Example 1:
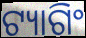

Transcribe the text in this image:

ଟ୍ୟାଗିଂ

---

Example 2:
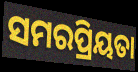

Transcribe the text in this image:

ସମରପ୍ରିୟତା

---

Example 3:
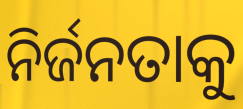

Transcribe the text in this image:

ନିର୍ଜନତାକୁ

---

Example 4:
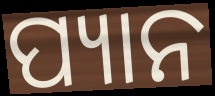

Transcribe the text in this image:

ପ୍ୟାନ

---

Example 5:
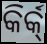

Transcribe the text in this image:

କିର୍କ୍